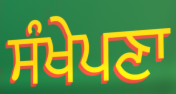
ਸੰਖੇਪਣਾ